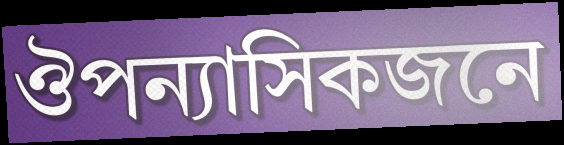
ঔপন্যাসিকজনে